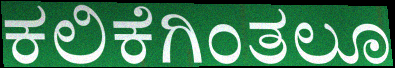
ಕಲಿಕೆಗಿಂತಲೂ